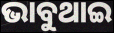
ଭାବୁଥାଇ